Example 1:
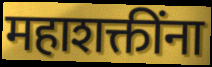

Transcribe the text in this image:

महाशक्तींना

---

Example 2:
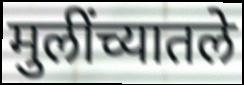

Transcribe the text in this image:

मुलींच्यातले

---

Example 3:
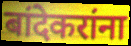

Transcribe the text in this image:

बांदेकरांना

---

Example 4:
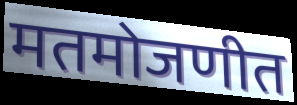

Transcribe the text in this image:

मतमोजणीत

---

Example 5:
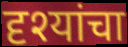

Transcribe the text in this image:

दृश्यांचा